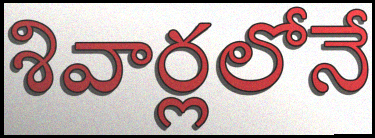
శివార్లలోనే